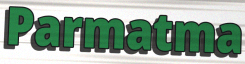
Parmatma